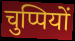
चुप्पियों